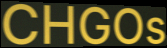
CHGOs